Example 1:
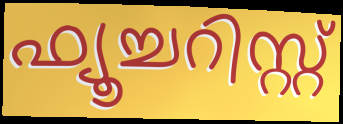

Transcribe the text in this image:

ഫ്യൂച്ചറിസ്റ്റ്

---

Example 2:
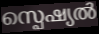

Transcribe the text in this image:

സ്പെഷ്യൽ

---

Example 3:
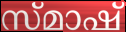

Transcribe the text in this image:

സ്മാഷ്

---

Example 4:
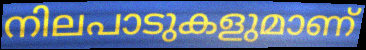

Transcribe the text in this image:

നിലപാടുകളുമാണ്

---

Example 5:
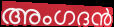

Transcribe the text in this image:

അംഗദൻ